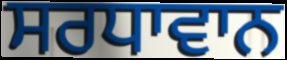
ਸਰਧਾਵਾਨ